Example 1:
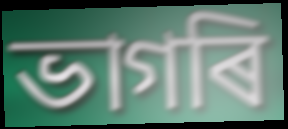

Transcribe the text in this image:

ভাগৰি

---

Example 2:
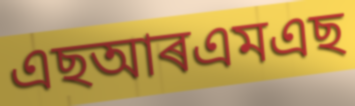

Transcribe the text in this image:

এছআৰএমএছ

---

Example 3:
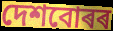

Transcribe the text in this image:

দেশবোৰৰ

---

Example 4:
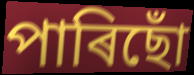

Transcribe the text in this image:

পাৰিছোঁ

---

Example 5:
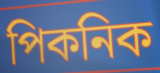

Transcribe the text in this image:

পিকনিক